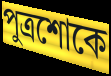
পুত্রশোকে